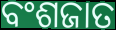
ବଂଶଜାତ